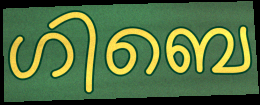
ഗിബെ